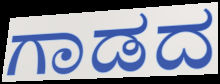
ಗಾಡದ